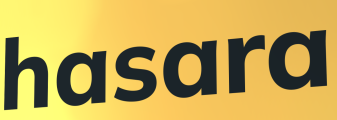
hasara